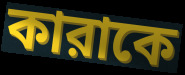
কারাকে